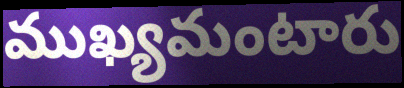
ముఖ్యమంటారు